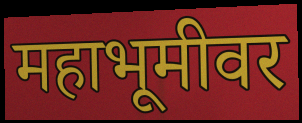
महाभूमीवर